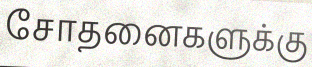
சோதனைகளுக்கு